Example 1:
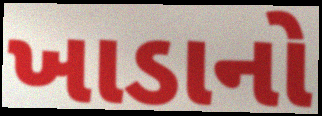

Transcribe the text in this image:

ખાડાનો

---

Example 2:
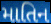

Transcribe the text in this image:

માતિન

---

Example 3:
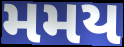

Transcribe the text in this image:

મમય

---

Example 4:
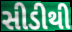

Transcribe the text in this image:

સીડીથી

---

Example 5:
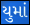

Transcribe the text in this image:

યુમાં